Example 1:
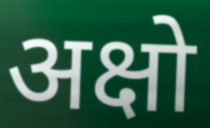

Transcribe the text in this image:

अक्षो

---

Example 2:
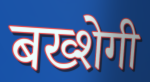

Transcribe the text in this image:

बख्शेगी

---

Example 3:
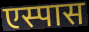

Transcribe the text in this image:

एस्पास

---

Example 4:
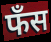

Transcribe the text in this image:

फँस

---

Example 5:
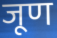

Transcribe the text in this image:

जूण